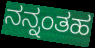
ನನ್ನಂತಹ